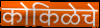
कोकिळेचे